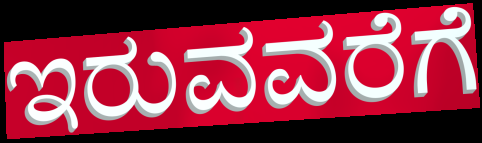
ಇರುವವರೆಗೆ